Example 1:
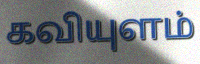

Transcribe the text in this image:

கவியுளம்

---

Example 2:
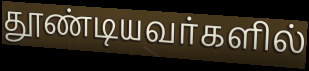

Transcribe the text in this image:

தூண்டியவர்களில்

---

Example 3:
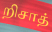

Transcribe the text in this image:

றிசாத்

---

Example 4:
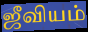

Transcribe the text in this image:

ஜீவியம்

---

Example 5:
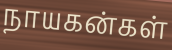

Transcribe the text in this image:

நாயகன்கள்